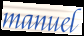
manuel